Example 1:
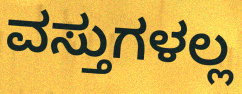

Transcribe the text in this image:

ವಸ್ತುಗಳಲ್ಲ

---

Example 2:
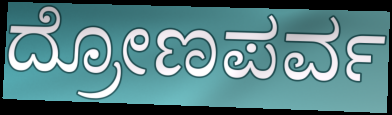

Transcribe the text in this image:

ದ್ರೋಣಪರ್ವ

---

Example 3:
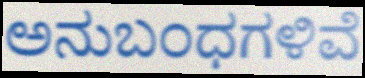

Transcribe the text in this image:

ಅನುಬಂಧಗಳಿವೆ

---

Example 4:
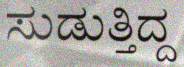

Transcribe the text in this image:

ಸುಡುತ್ತಿದ್ದ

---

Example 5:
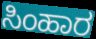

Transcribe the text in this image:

ಸಿಂಹಾರ